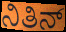
ನಿತಿನ್